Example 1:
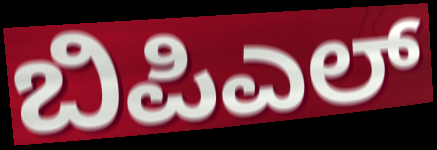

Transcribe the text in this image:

ಬಿಪಿಎಲ್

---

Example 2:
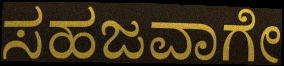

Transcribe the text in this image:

ಸಹಜವಾಗೇ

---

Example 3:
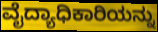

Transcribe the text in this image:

ವೈದ್ಯಾಧಿಕಾರಿಯನ್ನು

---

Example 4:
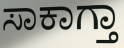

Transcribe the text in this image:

ಸಾಕಾಗ್ತಾ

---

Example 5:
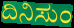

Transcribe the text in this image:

ದಿನಿಸುಂ